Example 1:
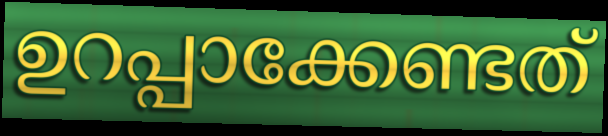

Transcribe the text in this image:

ഉറപ്പാക്കേണ്ടത്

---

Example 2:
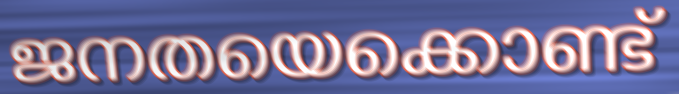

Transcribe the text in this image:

ജനതയെക്കൊണ്ട്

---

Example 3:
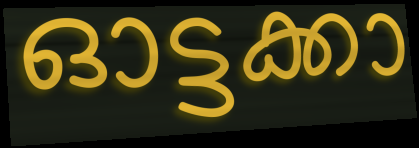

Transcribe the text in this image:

ഓട്ടക്കാ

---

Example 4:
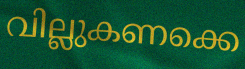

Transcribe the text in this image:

വില്ലുകണക്കെ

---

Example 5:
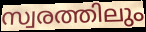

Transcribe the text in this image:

സ്വരത്തിലും